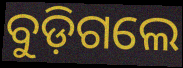
ବୁଡ଼ିଗଲେ